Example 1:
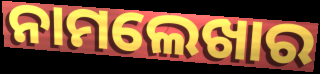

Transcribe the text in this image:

ନାମଲେଖାର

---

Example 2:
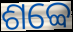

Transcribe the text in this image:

ଶବ୍ବେ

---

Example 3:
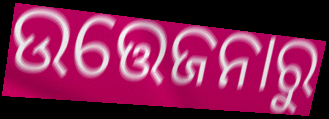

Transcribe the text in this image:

ଉତ୍ତେଜନାରୁ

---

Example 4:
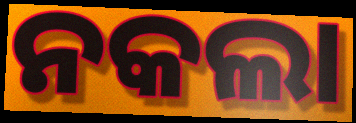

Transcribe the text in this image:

ନକଲା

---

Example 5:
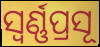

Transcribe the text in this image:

ସ୍ୱର୍ଣ୍ଣପ୍ରସୂ